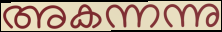
അകന്നന്നു